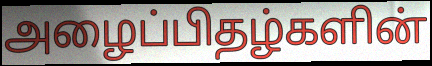
அழைப்பிதழ்களின்